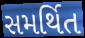
સમર્થિત